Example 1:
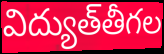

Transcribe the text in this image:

విద్యుత్‌తీగల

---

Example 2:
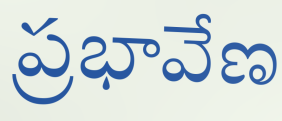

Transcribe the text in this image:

ప్రభావేణ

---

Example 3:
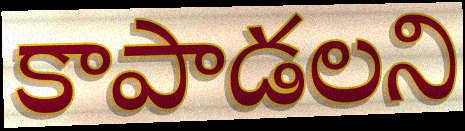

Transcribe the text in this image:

కాపాడలని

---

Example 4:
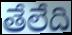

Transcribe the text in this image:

తేలేది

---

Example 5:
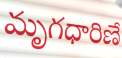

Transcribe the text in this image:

మృగధారిణే